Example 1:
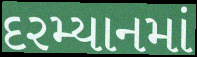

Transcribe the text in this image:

દરમ્યાનમાં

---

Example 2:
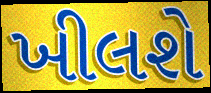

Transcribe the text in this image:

ખીલશે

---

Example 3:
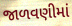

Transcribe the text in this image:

જાળવણીમાં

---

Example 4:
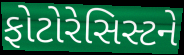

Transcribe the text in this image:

ફોટોરેસિસ્ટને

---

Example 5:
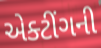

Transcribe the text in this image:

એક્ટીંગની